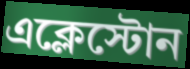
এক্লেস্টোন